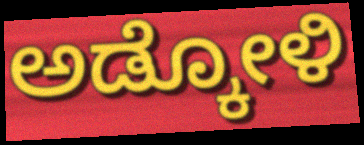
ಅಡ್ಕೋಳಿ